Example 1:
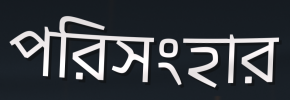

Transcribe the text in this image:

পরিসংহার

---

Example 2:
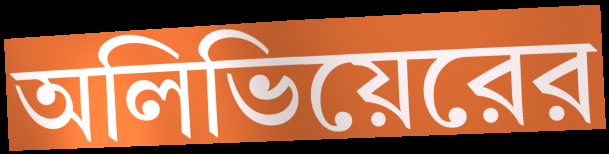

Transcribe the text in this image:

অলিভিয়েরের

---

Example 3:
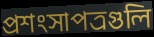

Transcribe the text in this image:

প্রশংসাপত্রগুলি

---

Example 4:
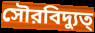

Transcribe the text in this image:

সৌরবিদ্যুত্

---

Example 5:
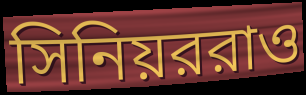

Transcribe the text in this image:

সিনিয়ররাও